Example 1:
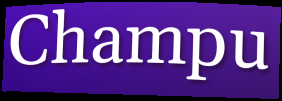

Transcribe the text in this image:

Champu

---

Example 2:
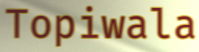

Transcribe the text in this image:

Topiwala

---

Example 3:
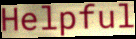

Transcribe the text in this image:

Helpful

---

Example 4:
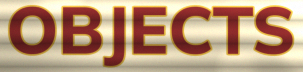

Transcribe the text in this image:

OBJECTS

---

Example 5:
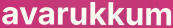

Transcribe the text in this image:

avarukkum